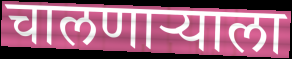
चालणाऱ्याला